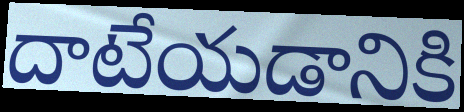
దాటేయడానికి